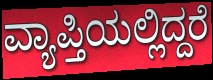
ವ್ಯಾಪ್ತಿಯಲ್ಲಿದ್ದರೆ